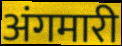
अंगमारी